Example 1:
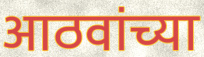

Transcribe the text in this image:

आठवांच्या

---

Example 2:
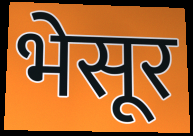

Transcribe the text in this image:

भेसूर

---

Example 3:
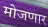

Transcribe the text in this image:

मोजणार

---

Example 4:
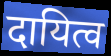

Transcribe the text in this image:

दायित्व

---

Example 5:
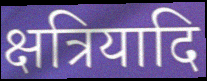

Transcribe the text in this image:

क्षत्रियादि